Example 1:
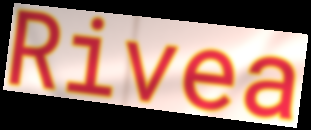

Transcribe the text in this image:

Rivea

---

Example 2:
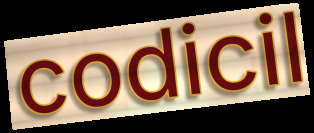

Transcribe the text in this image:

codicil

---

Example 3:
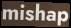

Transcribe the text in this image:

mishap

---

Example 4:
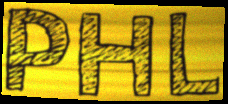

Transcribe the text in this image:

PHL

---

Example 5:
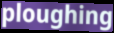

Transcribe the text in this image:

ploughing